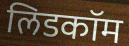
लिडकॉम